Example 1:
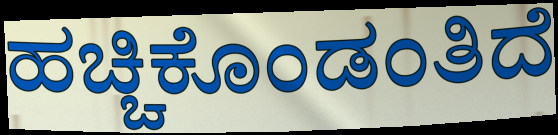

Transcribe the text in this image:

ಹಚ್ಚಿಕೊಂಡಂತಿದೆ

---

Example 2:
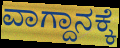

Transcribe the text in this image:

ವಾಗ್ದಾನಕ್ಕೆ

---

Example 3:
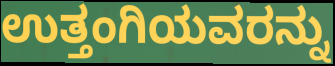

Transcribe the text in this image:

ಉತ್ತಂಗಿಯವರನ್ನು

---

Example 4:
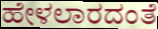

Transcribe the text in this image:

ಹೇಳಲಾರದಂತೆ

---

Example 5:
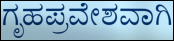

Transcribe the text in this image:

ಗೃಹಪ್ರವೇಶವಾಗಿ